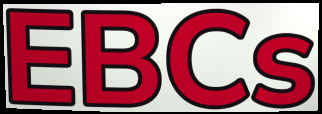
EBCs